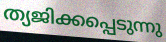
ത്യജിക്കപ്പെടുന്നു